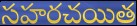
సహరచయిత